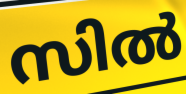
സിൽ